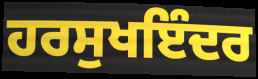
ਹਰਸੁਖਇੰਦਰ